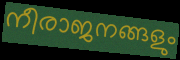
നീരാജനങ്ങളും